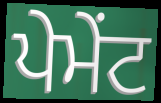
ਪੇਮੇਂਟ